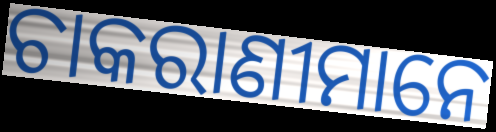
ଚାକରାଣୀମାନେ